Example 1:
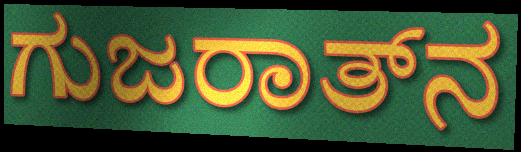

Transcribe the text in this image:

ಗುಜರಾತ್‌ನ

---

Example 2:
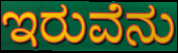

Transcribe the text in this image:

ಇರುವೆನು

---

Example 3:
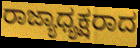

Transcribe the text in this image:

ರಾಜ್ಯಾಧ್ಯಕ್ಷರಾದ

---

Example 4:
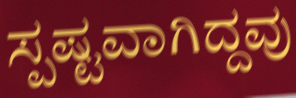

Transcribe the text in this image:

ಸ್ಪಷ್ಟವಾಗಿದ್ದವು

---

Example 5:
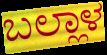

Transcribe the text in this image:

ಬಲ್ಲಾಳ